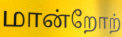
மான்றோற்